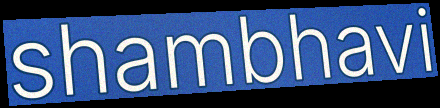
shambhavi